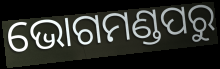
ଭୋଗମଣ୍ଡପରୁ